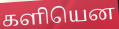
களியென